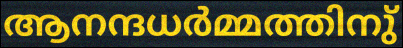
ആനന്ദധർമ്മത്തിനു്